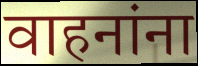
वाहनांना